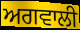
ਅਗਵਾਲੀ